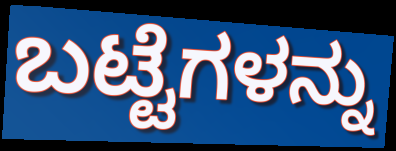
ಬಟ್ಟೆಗಳನ್ನು